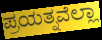
ಪ್ರಯತ್ನವೆಲ್ಲಾ